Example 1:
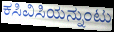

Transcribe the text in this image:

ಕಸಿವಿಸಿಯನ್ನುಂಟು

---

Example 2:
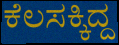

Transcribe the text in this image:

ಕೆಲಸಕ್ಕಿದ್ದ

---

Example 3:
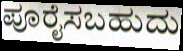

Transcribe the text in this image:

ಪೂರೈಸಬಹುದು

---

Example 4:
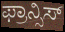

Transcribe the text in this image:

ಫ್ರಾನ್ಸಿಸ್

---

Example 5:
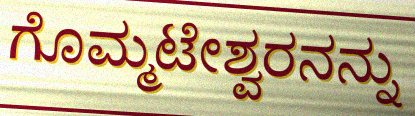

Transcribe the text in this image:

ಗೊಮ್ಮಟೇಶ್ವರನನ್ನು